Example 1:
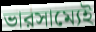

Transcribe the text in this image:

ভারসাম্যেই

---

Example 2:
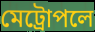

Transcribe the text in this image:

মেট্রোপলে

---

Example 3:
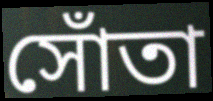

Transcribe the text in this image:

সোঁতা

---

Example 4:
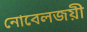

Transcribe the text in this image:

নোবেলজয়ী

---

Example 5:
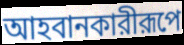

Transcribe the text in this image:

আহবানকারীরূপে